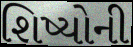
શિષ્યોની